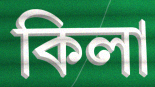
কিলা